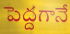
పెద్దగానే